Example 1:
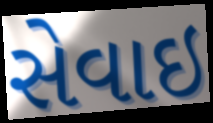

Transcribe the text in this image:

સેવાઇ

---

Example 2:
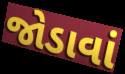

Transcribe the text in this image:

જોડાવાં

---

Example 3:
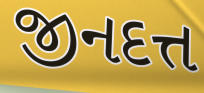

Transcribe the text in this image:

જીનદત્ત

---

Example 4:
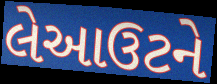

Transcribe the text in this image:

લેઆઉટને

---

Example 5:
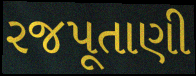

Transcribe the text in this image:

રજપૂતાણી